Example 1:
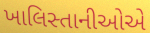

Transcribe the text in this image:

ખાલિસ્તાનીઓએ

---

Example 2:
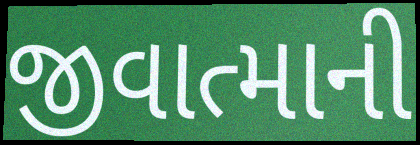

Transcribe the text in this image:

જીવાત્માની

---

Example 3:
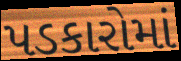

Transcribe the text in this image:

પડકારોમાં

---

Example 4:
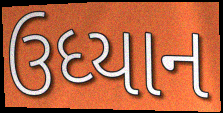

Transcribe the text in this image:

ઉધ્યાન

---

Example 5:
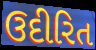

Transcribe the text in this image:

ઉદીરિત